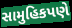
સામુહિકપણે